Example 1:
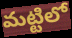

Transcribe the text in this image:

మట్టిలో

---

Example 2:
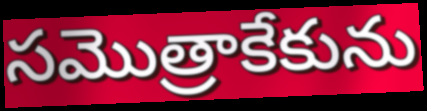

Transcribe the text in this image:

సమొత్రాకేకును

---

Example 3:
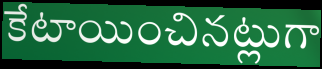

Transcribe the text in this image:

కేటాయించినట్లుగా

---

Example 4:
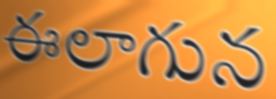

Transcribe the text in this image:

ఈలాగున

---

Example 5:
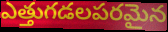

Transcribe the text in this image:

ఎత్తుగడలపరమైన